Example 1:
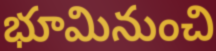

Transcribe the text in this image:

భూమినుంచి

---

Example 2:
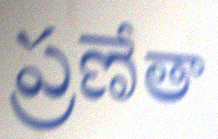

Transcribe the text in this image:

ప్రణేతా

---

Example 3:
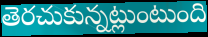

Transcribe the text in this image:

తెరచుకున్నట్లుంటుంది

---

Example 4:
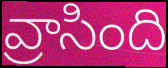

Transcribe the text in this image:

వ్రాసింది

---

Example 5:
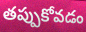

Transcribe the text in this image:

తప్పుకోవడం